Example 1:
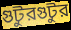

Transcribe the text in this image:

গুটুরগুটুর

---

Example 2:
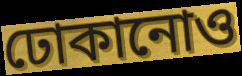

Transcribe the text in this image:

ঢোকানোও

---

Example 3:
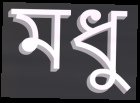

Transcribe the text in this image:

মধু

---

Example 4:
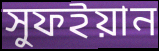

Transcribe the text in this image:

সুফইয়ান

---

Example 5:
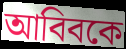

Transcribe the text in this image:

আবিবকে